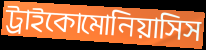
ট্রাইকোমোনিয়াসিস